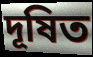
দূষিত